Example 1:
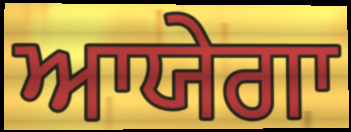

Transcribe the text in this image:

ਆਯੇਗਾ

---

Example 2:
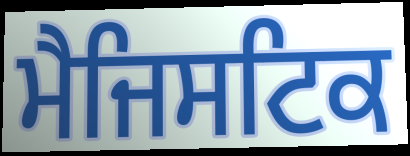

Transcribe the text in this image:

ਮੈਜਿਸਟਿਕ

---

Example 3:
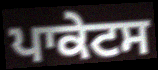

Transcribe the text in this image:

ਪਾਕੇਟਸ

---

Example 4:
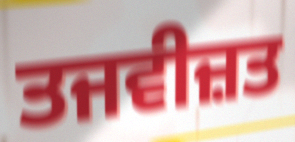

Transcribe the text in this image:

ਤਜਵੀਜ਼ਤ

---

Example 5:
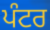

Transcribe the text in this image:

ਪੰਟਰ